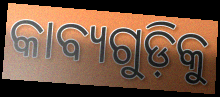
କାବ୍ୟଗୁଡ଼ିକୁ